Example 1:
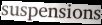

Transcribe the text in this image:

suspensions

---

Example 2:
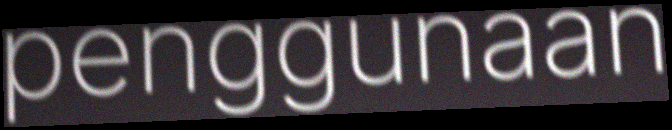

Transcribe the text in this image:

penggunaan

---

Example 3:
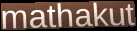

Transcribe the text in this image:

mathakut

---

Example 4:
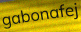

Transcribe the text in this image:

gabonafej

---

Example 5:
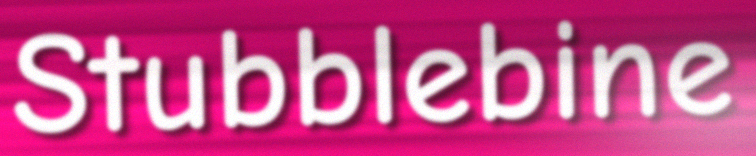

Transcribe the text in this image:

Stubblebine